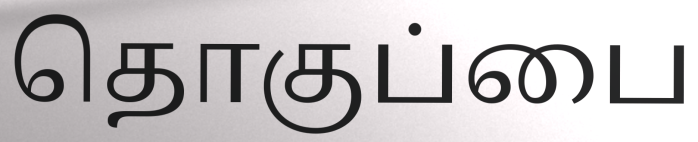
தொகுப்பை